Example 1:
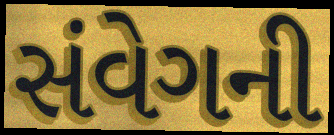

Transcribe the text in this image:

સંવેગની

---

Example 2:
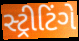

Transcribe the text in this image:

સ્ટ્રીટિંગે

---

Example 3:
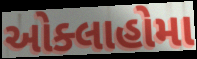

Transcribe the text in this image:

ઓક્લાહોમા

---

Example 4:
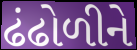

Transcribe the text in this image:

ઢંઢોળીને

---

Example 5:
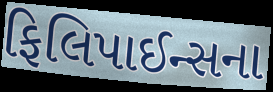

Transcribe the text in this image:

ફિલિપાઈન્સના